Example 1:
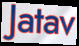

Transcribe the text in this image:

Jatav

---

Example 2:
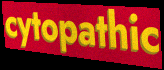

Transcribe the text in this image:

cytopathic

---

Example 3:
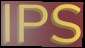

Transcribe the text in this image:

IPS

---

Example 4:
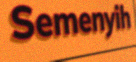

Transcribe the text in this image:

Semenyih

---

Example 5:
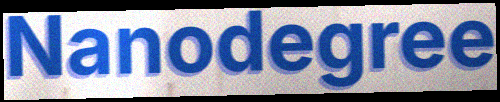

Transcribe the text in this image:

Nanodegree